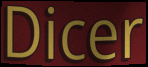
Dicer